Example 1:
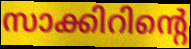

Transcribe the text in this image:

സാക്കിറിന്റെ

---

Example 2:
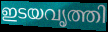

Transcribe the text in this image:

ഇടയവൃത്തി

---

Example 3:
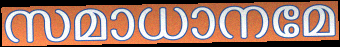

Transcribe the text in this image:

സമാധാനമേ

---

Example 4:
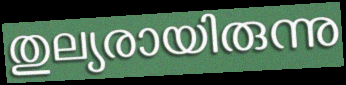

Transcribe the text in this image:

തുല്യരായിരുന്നു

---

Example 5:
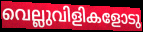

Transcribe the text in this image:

വെല്ലുവിളികളോടു